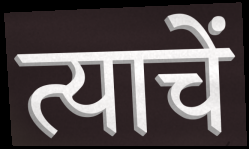
त्याचें